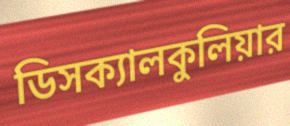
ডিসক্যালকুলিয়ার